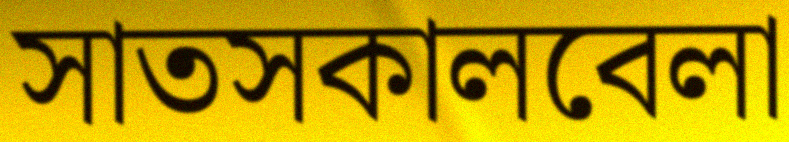
সাতসকালবেলা